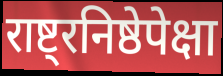
राष्ट्रनिष्ठेपेक्षा